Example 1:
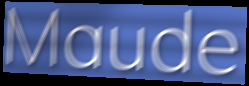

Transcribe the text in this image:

Maude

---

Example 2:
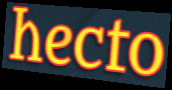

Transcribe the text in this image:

hecto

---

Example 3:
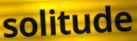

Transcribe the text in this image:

solitude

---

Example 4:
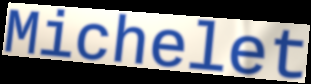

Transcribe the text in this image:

Michelet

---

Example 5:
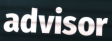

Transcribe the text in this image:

advisor